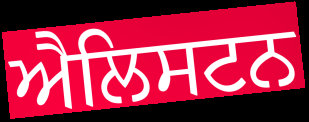
ਐਲਿਸਟਨ